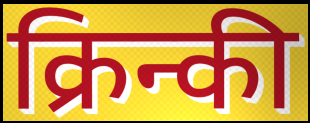
क्रिन्की